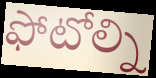
ఫోటోల్ని